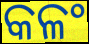
କଳଂ